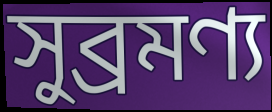
সুব্রমণ্য